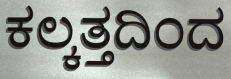
ಕಲ್ಕತ್ತದಿಂದ